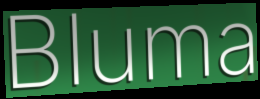
Bluma